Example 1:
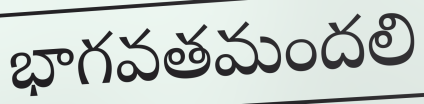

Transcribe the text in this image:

భాగవతమందలి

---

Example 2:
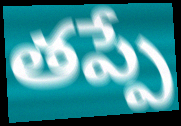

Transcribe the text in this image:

తప్పే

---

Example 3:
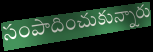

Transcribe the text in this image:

సంపాదించుకున్నారు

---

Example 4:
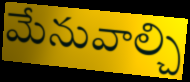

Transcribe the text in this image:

మేనువాల్చి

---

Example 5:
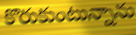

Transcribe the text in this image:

కొరుకుంటున్నాను